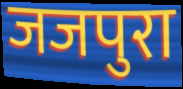
जजपुरा